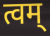
त्वम्